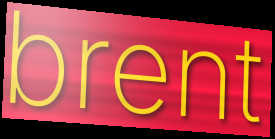
brent